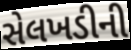
સેલખડીની